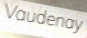
Vaudenay